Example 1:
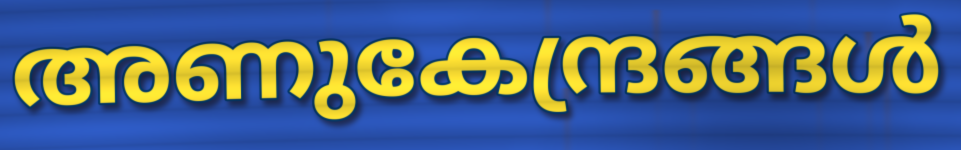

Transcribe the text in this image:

അണുകേന്ദ്രങ്ങൾ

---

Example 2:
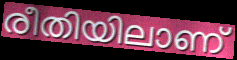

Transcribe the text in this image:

രീതിയിലാണ്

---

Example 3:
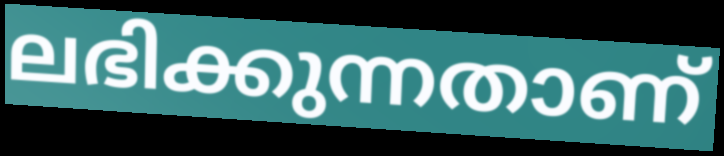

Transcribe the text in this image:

ലഭിക്കുന്നതാണ്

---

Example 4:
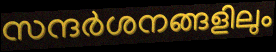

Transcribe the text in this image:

സന്ദർശനങ്ങളിലും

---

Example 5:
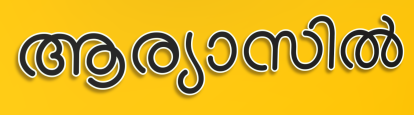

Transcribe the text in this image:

ആര്യാസിൽ